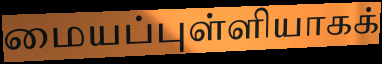
மையப்புள்ளியாகக்